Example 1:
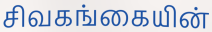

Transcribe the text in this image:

சிவகங்கையின்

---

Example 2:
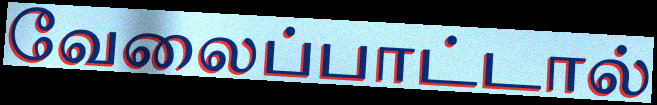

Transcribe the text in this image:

வேலைப்பாட்டால்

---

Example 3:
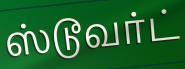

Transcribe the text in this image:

ஸ்டூவர்ட்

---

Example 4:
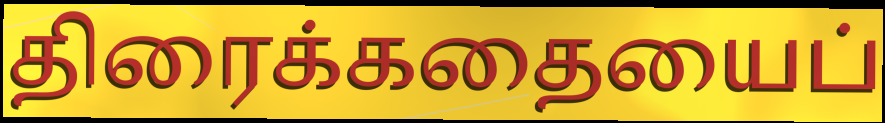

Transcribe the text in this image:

திரைக்கதையைப்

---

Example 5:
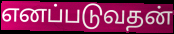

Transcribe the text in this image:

எனப்படுவதன்